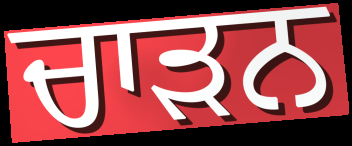
ਚਾੜਨ